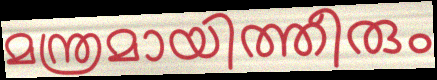
മന്ത്രമായിത്തീരും